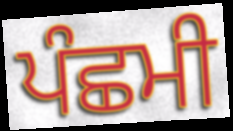
ਪੰਛਮੀ